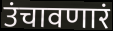
उंचावणारं